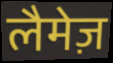
लैमेज़